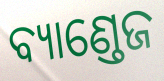
ବ୍ୟାଣ୍ଡେଜ